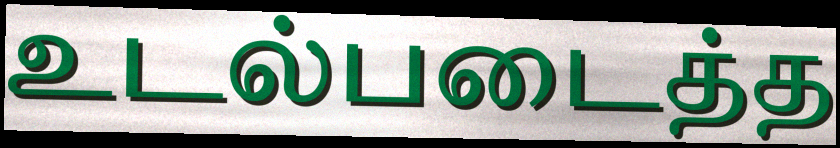
உடல்படைத்த